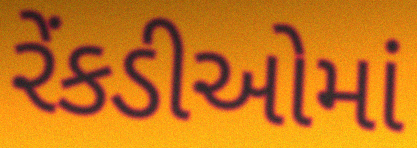
રેંકડીઓમાં